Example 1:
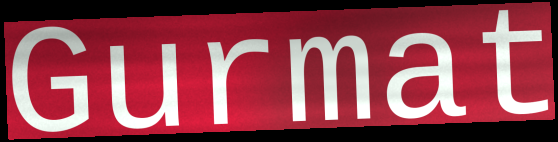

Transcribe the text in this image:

Gurmat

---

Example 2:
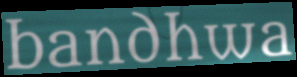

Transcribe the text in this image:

bandhwa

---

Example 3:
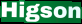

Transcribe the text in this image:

Higson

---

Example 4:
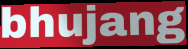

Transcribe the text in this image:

bhujang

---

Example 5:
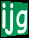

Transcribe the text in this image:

ijg